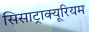
सिसाट्राक्यूरियम